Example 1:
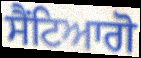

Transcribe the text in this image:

ਸੈਂਟਿਆਗੋ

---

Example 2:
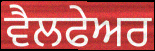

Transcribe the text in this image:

ਵੈਲਫੇਅਰ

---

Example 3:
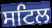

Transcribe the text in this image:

ਸਟਿਲ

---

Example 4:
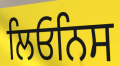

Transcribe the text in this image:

ਲਿਓਨਿਸ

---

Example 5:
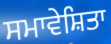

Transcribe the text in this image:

ਸਮਾਵੇਸ਼ਿਤਾ